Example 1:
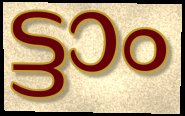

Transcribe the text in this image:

ട്ടാം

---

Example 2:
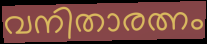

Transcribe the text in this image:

വനിതാരത്നം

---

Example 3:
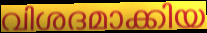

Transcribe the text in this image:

വിശദമാക്കിയ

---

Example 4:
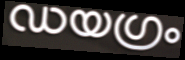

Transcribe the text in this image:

ഡയഗ്രം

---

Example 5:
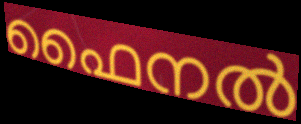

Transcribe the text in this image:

ഫൈനൽ